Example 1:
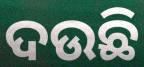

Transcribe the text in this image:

ଦଉଛି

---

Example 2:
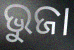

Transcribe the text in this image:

ଭୁଜା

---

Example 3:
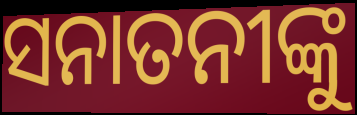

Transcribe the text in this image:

ସନାତନୀଙ୍କୁ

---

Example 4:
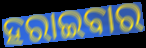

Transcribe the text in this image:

ହରାଇବାର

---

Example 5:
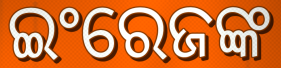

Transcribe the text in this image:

ଇଂରେଜଙ୍କ